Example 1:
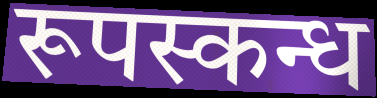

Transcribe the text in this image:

रूपस्कन्ध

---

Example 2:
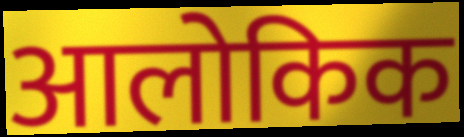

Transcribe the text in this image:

आलोकिक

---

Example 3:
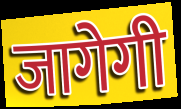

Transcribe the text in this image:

जागेगी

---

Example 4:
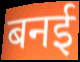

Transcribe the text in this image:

बनई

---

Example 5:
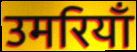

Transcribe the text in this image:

उमरियाँ